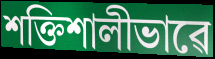
শক্তিশালীভাৱে